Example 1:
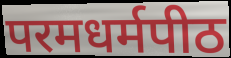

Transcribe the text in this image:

परमधर्मपीठ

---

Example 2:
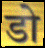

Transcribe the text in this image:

डो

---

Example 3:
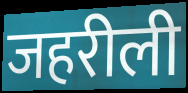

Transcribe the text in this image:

जहरीली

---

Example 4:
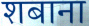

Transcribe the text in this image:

शबाना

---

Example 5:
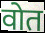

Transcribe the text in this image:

वोत